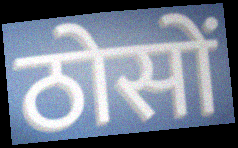
ठोसों